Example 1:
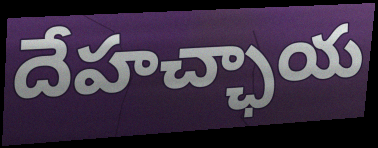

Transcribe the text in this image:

దేహచ్ఛాయ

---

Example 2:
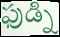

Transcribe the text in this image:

ఫుడ్ని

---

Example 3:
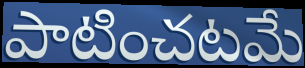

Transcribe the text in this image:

పాటించటమే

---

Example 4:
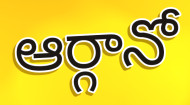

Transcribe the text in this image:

ఆర్గానో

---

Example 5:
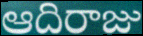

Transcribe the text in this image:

ఆదిరాజు